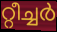
റ്റീച്ചർ